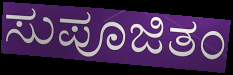
ಸುಪೂಜಿತಂ